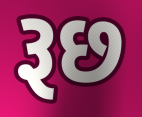
રૂછ